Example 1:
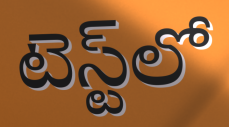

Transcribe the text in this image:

టెస్ట్‌లో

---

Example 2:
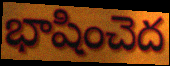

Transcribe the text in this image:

భాషించెద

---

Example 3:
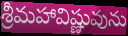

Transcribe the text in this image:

శ్రీమహావిష్ణువును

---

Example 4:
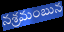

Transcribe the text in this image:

నశ్రమంబున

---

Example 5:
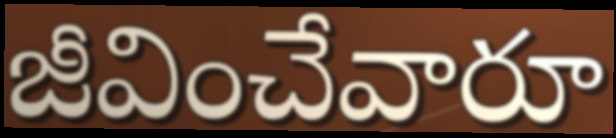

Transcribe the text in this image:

జీవించేవారూ